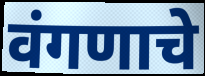
वंगणाचे